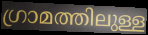
ഗ്രാമത്തിലുള്ള